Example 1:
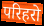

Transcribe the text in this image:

परिहरो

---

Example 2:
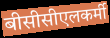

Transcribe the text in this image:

बीसीसीएलकर्मी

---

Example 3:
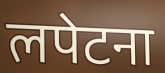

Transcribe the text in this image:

लपेटना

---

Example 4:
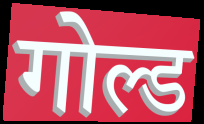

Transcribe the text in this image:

गोल्‍ड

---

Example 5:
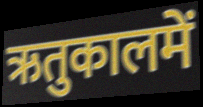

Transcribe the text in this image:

ऋतुकालमें